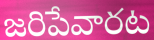
జరిపేవారట